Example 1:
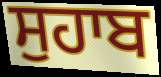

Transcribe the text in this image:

ਸੁਹਾਬ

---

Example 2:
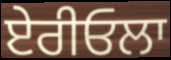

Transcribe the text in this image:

ਏਰੀਓਲਾ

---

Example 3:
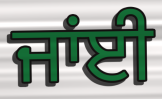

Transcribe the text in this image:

ਜਾਂਈ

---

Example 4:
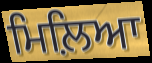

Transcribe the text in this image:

ਮਿਲ਼ਿਆ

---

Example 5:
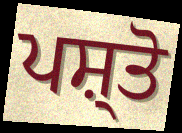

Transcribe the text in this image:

ਪਸ਼੍ਤੋ